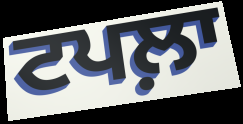
ਟਪਲ਼ਾ